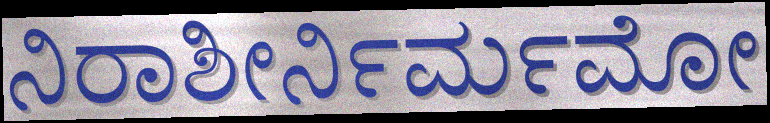
ನಿರಾಶೀರ್ನಿರ್ಮಮೋ